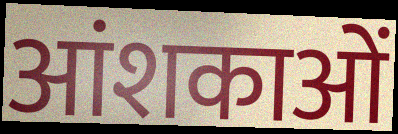
आंशकाओं